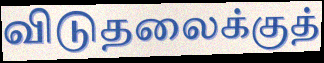
விடுதலைக்குத்